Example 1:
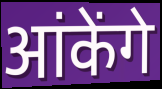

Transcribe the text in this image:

आंकेंगे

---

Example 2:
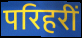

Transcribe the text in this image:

परिहरीं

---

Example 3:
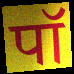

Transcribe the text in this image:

पॉ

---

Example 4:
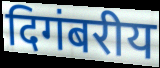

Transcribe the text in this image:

दिगंबरीय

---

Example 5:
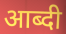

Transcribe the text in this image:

आब्दी